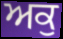
ਅਕੁ